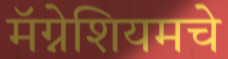
मॅग्नेशियमचे